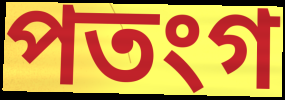
পতংগ